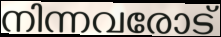
നിന്നവരോട്